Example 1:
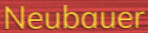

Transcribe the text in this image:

Neubauer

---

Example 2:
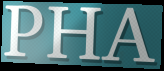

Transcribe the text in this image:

PHA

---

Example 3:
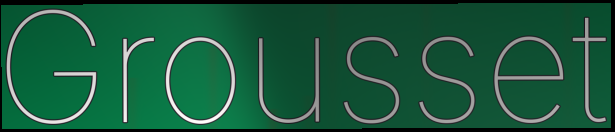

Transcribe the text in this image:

Grousset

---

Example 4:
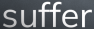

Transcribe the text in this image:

suffer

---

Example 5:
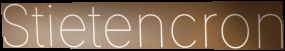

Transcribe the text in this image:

Stietencron